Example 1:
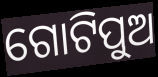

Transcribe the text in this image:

ଗୋଟିପୁଅ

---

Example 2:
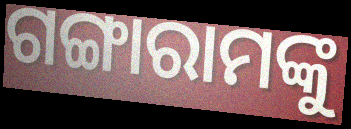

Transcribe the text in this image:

ଗଙ୍ଗାରାମଙ୍କୁ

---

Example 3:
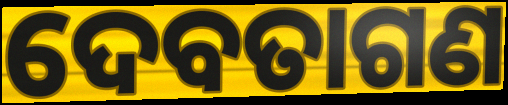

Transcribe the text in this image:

ଦେବତାଗଣ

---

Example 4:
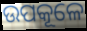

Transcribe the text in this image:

ଉପକୂଳେ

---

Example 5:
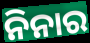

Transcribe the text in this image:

ନିନାର